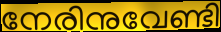
നേരിനുവേണ്ടി